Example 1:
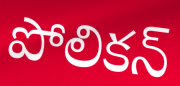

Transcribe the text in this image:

పోలికన్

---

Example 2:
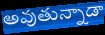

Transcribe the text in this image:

అవుతున్నాడా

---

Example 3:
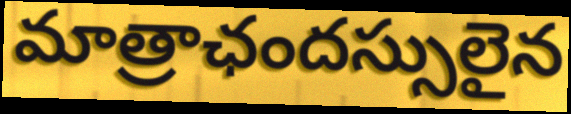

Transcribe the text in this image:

మాత్రాఛందస్సులైన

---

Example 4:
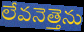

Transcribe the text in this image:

లేవనెత్తెను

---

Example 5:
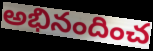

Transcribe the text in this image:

అభినందించ